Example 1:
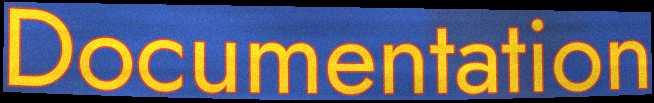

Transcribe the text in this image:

Documentation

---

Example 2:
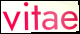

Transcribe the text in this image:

vitae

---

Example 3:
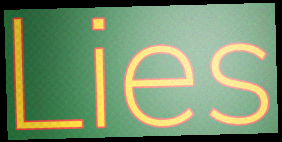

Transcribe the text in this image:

Lies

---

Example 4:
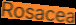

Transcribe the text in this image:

Rosacea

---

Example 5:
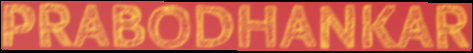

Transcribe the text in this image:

PRABODHANKAR